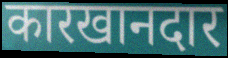
कारखानदार